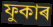
ফুকাৰ